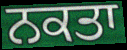
ਨਕਤਾ